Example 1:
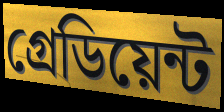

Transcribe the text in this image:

গ্রেডিয়েন্ট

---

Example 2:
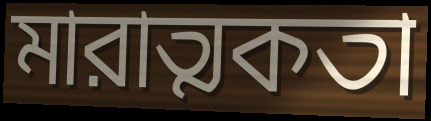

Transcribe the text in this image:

মারাত্মকতা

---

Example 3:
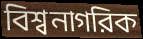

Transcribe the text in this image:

বিশ্বনাগরিক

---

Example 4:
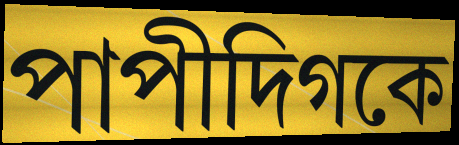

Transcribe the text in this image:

পাপীদিগকে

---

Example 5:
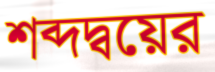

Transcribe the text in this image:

শব্দদ্বয়ের